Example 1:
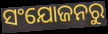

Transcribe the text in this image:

ସଂଯୋଜନରୁ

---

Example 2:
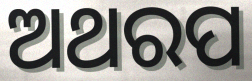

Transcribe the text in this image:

ଅଥରପ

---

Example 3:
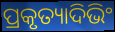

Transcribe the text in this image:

ପ୍ରକୃତ୍ୟାଦିଭିଂ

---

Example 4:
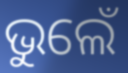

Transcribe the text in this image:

ଭୁଲେଁ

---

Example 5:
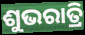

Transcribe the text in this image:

ଶୁଭରାତ୍ରି